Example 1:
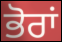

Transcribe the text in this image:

ਭੋਰਾਂ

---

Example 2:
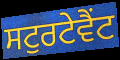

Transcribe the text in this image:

ਸਟੁਰਟੇਵੈਂਟ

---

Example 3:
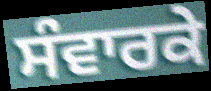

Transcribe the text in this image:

ਸੰਵਾਰਕੇ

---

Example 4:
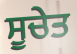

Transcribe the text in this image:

ਸੂਚੇਤ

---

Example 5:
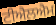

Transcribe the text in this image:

ਟੀਐਲਐਮ